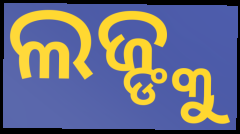
ଲଜ୍ଙ୍କୁ